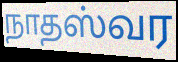
நாதஸ்வர